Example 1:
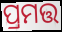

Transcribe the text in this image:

ପ୍ରମତ୍ତ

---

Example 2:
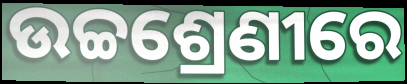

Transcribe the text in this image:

ଉଚ୍ଚଶ୍ରେଣୀରେ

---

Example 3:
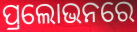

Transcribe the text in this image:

ପ୍ରଲୋଭନରେ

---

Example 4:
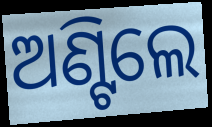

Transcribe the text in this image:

ଅଣ୍ଟିଲେ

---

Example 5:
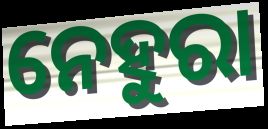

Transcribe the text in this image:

ନେହୁରା